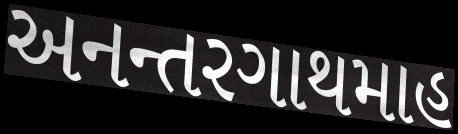
અનન્તરગાથમાહ